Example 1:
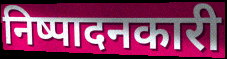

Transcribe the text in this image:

निष्पादनकारी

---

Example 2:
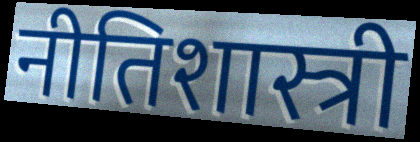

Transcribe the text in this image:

नीतिशास्त्री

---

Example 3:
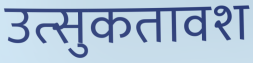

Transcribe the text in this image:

उत्सुकतावश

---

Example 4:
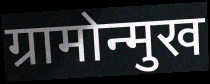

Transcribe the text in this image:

ग्रामोन्मुख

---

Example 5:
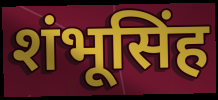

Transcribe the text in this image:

शंभूसिंह